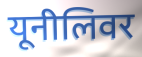
यूनीलिवर